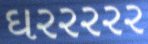
ઘરરરરર